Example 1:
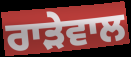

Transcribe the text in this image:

ਰਾੜੇਵਾਲ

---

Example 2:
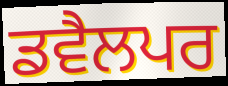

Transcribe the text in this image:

ਡਵੈਲਪਰ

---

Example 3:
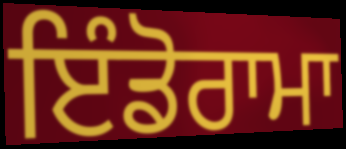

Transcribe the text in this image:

ਇੰਡੋਰਾਮਾ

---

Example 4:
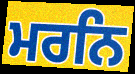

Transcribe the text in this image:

ਮਰਨਿ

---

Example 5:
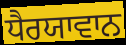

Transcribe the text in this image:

ਧੈਰਯਾਵਾਨ